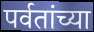
पर्वतांच्या